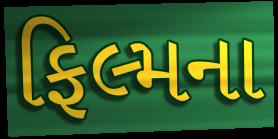
ફિલ્મના